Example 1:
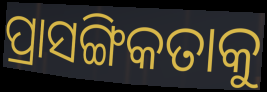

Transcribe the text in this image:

ପ୍ରାସଙ୍ଗିକତାକୁ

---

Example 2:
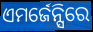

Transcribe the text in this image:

ଏମର୍ଜେନ୍ସିରେ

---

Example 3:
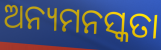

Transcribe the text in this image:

ଅନ୍ୟମନସ୍କତା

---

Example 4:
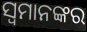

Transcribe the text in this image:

ସ୍ୱମାନଙ୍କର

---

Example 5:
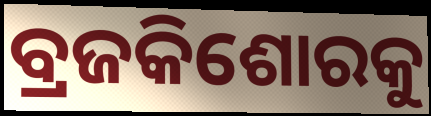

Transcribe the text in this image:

ବ୍ରଜକିଶୋରକୁ